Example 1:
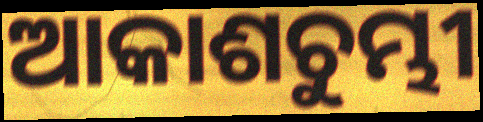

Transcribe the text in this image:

ଆକାଶଚୁମ୍ଭୀ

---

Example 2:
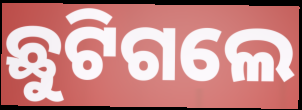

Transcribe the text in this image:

ଛୁଟିଗଲେ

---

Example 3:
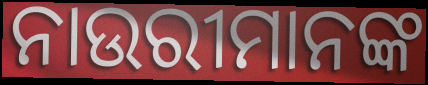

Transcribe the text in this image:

ନାଉରୀମାନଙ୍କ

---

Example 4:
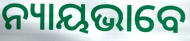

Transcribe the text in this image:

ନ୍ୟାୟଭାବେ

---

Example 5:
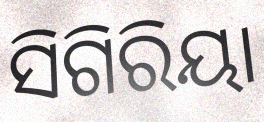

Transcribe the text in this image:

ସିଗିରିୟା